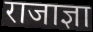
राजाज्ञा